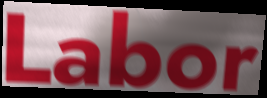
Labor